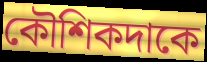
কৌশিকদাকে